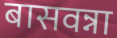
बासवन्ना